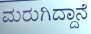
ಮರುಗಿದ್ದಾನೆ